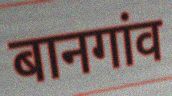
बानगांव